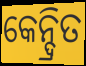
କେନ୍ଦ୍ରିତ